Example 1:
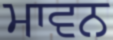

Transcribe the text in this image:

ਮਾਵਨ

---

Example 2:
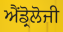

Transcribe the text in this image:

ਐਂਡ੍ਰੋਲੋਜੀ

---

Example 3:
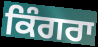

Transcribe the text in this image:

ਕਿੰਗਰਾ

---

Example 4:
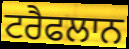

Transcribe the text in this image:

ਟਰੈਫਲਾਨ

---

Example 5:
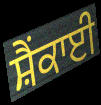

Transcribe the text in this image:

ਸ਼ੈਂਕਾਈ